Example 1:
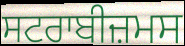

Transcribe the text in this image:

ਸਟਰਾਬੀਜ਼ਮਸ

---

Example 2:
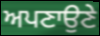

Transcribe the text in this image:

ਅਪਣਾਉਣੇ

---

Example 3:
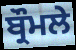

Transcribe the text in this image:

ਬ੍ਰੌਮਲੇ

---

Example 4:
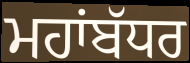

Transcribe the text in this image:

ਮਹਾਂਬੱਧਰ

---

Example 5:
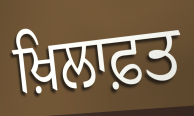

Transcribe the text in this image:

ਖ਼ਿਲਾਫ਼ਤ